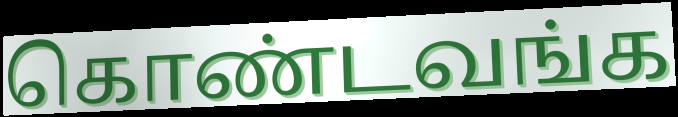
கொண்டவங்க